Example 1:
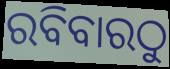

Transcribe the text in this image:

ରବିବାରଠୁ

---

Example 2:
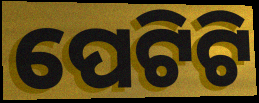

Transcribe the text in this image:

ପେଟିଟି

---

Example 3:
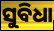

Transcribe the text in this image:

ସୁବିଧା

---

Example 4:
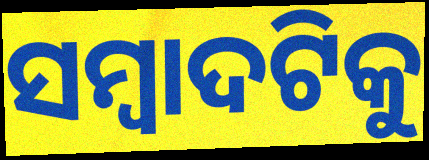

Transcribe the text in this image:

ସମ୍ୱାଦଟିକୁ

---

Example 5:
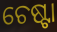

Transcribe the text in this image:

ଚେଷ୍ଟା